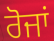
ਰੋਜਾਂ